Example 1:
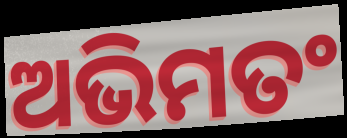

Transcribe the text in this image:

ଅଭିମତଂ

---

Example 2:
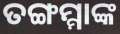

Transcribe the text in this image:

ତଙ୍ଗମ୍ମାଙ୍କ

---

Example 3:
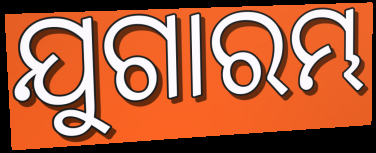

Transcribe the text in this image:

ଯୁଗାରମ୍ଭ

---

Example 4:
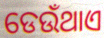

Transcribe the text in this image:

ଡେଉଁଥାଏ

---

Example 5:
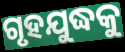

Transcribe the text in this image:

ଗୃହଯୁଦ୍ଧକୁ